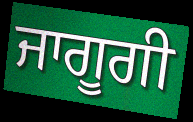
ਜਾਗੂਗੀ